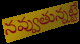
నవ్వుతున్నట్టే